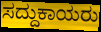
ಸದ್ದುಕಾಯರು